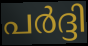
പർദ്ദി